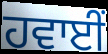
ਹਵਾਈਂ